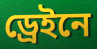
ড্রেইনে